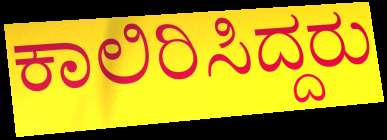
ಕಾಲಿರಿಸಿದ್ದರು